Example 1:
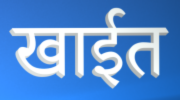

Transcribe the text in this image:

खाईत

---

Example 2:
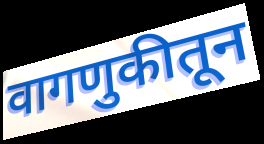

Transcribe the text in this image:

वागणुकीतून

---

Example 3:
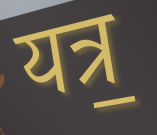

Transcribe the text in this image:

यत्र॒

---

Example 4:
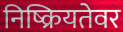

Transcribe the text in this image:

निष्क्रियतेवर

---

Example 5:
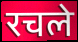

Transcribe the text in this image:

रचले